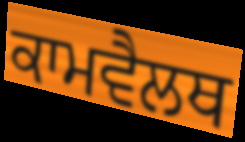
ਕਾਮਵੈਲਥ